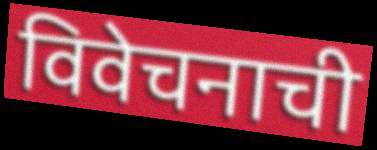
विवेचनाची